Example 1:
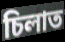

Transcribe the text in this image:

চিলাত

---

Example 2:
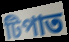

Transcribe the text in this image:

টিপাত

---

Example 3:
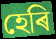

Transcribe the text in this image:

হেৰি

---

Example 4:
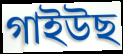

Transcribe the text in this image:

গাইউছ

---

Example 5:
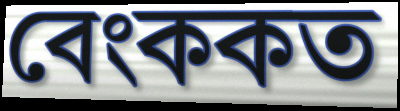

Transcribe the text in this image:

বেংককত